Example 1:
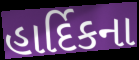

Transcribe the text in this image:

હાર્દિકના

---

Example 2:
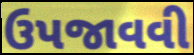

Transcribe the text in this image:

ઉપજાવવી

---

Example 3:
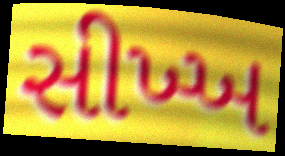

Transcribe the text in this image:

સીખ્ખ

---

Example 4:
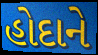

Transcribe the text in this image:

હોદાને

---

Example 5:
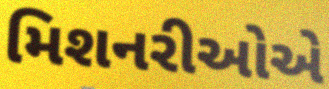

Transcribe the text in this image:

મિશનરીઓએ